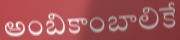
అంబికాంబాలికే